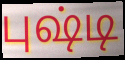
புஷ்டி